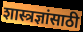
शास्त्रज्ञांसाठी